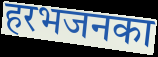
हरभजनका